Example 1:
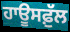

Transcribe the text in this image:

ਹਾਊਸਫ਼ੁੱਲ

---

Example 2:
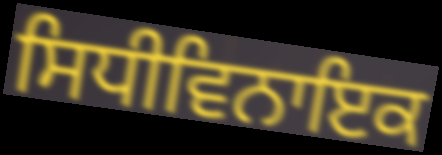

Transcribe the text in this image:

ਸਿਧੀਵਿਨਾਇਕ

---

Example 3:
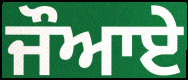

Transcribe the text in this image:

ਜੌਆਏ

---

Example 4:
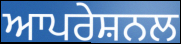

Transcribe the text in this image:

ਆਪਰੇਸ਼ਨਲ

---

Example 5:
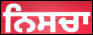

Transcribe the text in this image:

ਨਿਸਚਾ